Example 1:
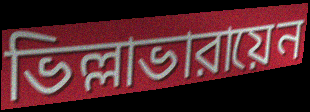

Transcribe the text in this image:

ভিল্লাভারায়েন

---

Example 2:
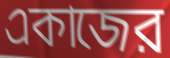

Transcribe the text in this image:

একাজের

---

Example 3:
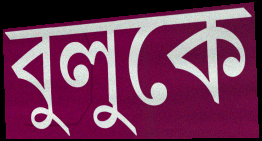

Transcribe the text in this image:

বুলুকে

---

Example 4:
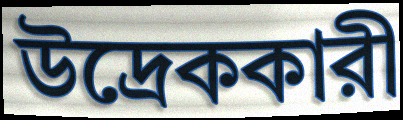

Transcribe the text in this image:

উদ্রেককারী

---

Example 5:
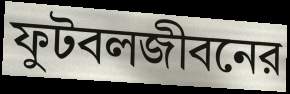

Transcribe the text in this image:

ফুটবলজীবনের